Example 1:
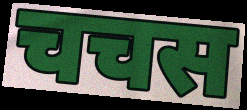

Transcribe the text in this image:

चचस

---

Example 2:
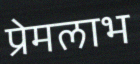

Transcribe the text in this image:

प्रेमलाभ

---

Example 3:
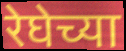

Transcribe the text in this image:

रेघेच्या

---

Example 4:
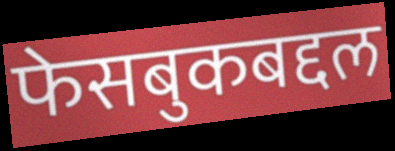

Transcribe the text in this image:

फेसबुकबद्दल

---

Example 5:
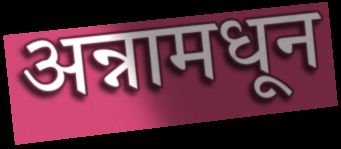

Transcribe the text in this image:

अन्नामधून